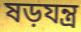
ষড়যন্ত্ৰ